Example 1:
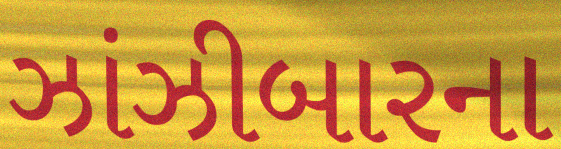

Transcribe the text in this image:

ઝાંઝીબારના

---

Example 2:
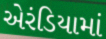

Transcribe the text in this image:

એરંડિયામાં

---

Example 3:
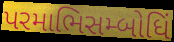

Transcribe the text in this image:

પરમાભિસમ્બોધિં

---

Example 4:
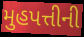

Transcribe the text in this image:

મુહપત્તીની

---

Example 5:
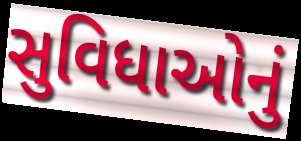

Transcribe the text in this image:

સુવિધાઓનું